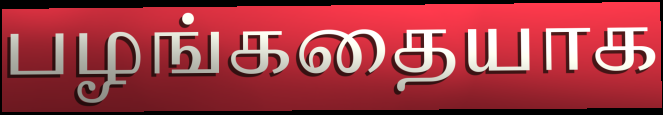
பழங்கதையாக